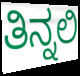
ತಿನ್ನಲಿ